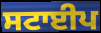
ਸਟਾਈਪ